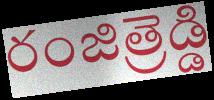
రంజిత్రెడ్డి